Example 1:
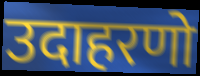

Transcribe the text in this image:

उदाहरणो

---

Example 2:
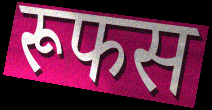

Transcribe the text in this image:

रूफस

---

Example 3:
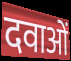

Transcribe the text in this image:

दवाओं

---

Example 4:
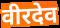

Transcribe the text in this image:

वीरदेव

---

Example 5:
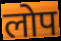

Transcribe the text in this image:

लोप